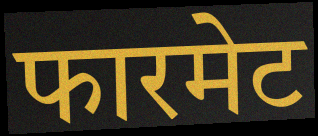
फारमेट